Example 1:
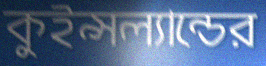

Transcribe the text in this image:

কুইন্সল্যান্ডের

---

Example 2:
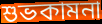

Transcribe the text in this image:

শুভকামনা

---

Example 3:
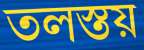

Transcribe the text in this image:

তলস্তয়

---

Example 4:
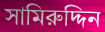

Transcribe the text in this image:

সামিরুদ্দিন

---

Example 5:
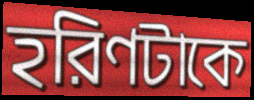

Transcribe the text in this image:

হরিণটাকে